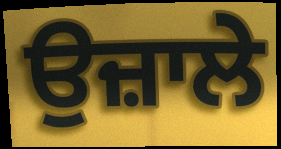
ਉਜ਼ਾਲੇ